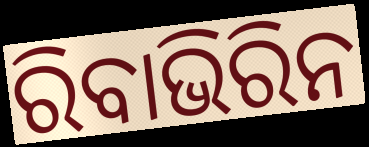
ରିବାଭିରିନ